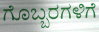
ಗೊಬ್ಬರಗಳಿಗೆ